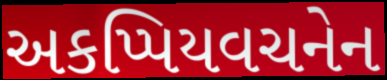
અકપ્પિયવચનેન